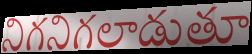
నిగనిగలాడుతూ